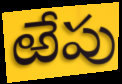
ఱేపు